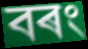
বৰং